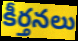
కీర్తనలు